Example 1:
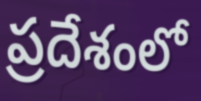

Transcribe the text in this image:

ప్రదేశంలో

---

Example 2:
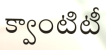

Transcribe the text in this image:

క్వాంటిటీ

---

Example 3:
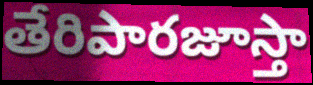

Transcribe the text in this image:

తేరిపారజూస్తా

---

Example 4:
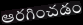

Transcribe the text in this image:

ఆరగించడం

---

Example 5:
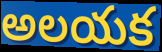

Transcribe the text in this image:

అలయక